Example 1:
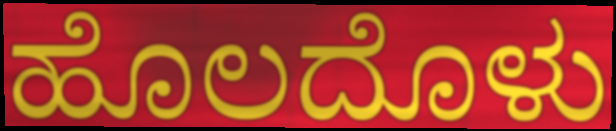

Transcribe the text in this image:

ಹೊಲದೊಳು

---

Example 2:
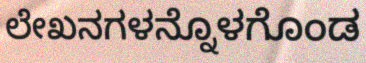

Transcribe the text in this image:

ಲೇಖನಗಳನ್ನೊಳಗೊಂಡ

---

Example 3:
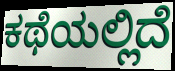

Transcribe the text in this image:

ಕಥೆಯಲ್ಲಿದೆ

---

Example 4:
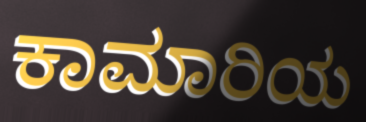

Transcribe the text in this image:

ಕಾಮಾರಿಯ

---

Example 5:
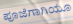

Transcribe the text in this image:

ಪೂಜೆಗಾಗಿಯೂ